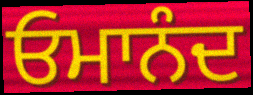
ਓਮਾਨੰਦ